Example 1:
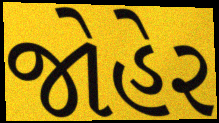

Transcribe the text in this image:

જોહેર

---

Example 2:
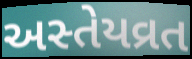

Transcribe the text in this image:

અસ્તેયવ્રત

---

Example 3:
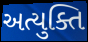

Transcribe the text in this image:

અત્યુક્તિ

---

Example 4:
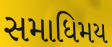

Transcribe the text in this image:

સમાધિમય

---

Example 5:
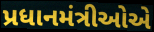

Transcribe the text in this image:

પ્રધાનમંત્રીઓએ